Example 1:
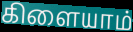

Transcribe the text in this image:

கிளையாம்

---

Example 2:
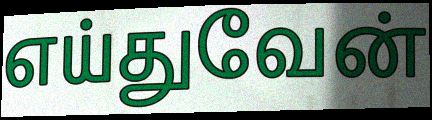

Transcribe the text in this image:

எய்துவேன்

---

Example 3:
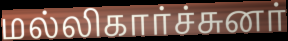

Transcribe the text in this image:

மல்லிகார்ச்சுனர்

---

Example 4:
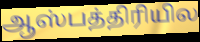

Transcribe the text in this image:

ஆஸ்பத்திரியில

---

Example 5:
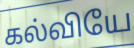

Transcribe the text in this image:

கல்வியே